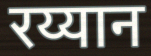
रय्यान